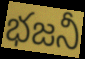
భజనీ